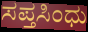
ಸಪ್ತಸಿಂಧು